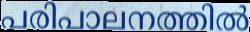
പരിപാലനത്തിൽ